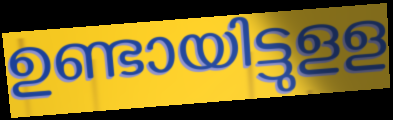
ഉണ്ടായിട്ടുളള